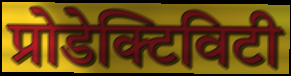
प्रोडेक्टिविटी